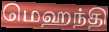
மெஹந்தி